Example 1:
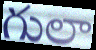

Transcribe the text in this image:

గులా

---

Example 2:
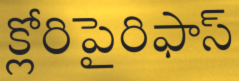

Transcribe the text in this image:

క్లోరిపైరిఫాస్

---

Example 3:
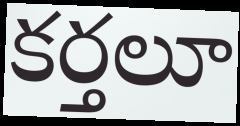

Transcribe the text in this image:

కర్తలూ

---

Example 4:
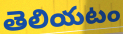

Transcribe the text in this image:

తెలియటం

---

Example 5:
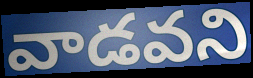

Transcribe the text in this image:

వాడవని